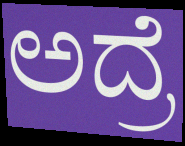
ಅದ್ರೆ